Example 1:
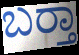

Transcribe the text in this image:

ಬರ‍್ತಾ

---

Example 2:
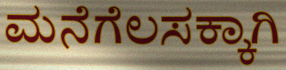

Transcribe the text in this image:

ಮನೆಗೆಲಸಕ್ಕಾಗಿ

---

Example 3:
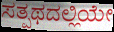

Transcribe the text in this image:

ಸತ್ಪಥದಲ್ಲಿಯೇ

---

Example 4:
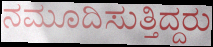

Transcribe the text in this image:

ನಮೂದಿಸುತ್ತಿದ್ದರು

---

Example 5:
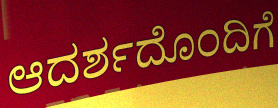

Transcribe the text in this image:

ಆದರ್ಶದೊಂದಿಗೆ